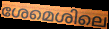
ശേമെശിലെ